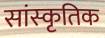
सांस्‍कृतिक